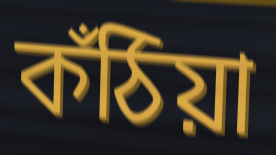
কঁঠিয়া